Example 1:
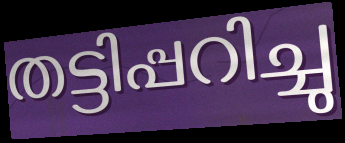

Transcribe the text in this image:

തട്ടിപ്പറിച്ചു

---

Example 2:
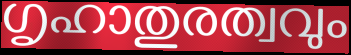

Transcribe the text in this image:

ഗൃഹാതുരത്വവും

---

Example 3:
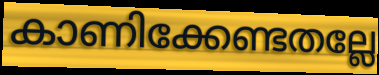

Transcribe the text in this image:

കാണിക്കേണ്ടതല്ലേ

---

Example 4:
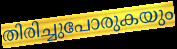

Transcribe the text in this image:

തിരിച്ചുപോരുകയും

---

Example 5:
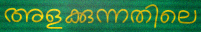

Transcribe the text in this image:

അളക്കുന്നതിലെ